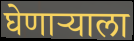
घेणार्‍याला